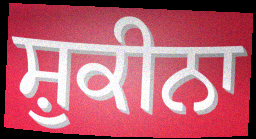
ਸ਼ੁਕੀਨਾ